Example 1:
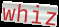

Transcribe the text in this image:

whiz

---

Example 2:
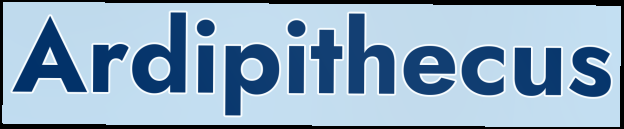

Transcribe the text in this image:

Ardipithecus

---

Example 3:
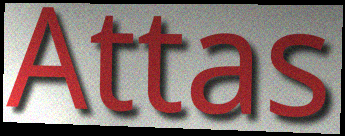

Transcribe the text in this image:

Attas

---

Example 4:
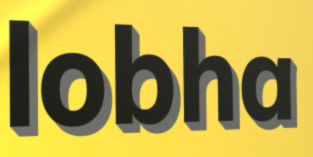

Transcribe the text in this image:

lobha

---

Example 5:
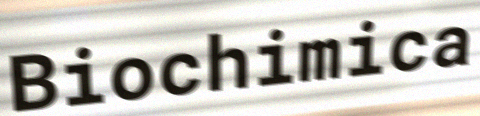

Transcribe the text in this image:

Biochimica